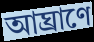
আঘ্রাণে